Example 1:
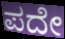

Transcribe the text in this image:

ಪದೇ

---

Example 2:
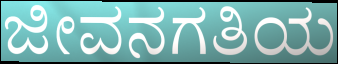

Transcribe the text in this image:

ಜೀವನಗತಿಯ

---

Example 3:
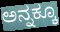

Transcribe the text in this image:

ಅನ್ನಕ್ಕೂ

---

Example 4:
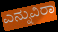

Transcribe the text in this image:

ಎನ್ನುವಿರಾ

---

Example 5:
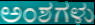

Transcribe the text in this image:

ಅಂಶಗಳು